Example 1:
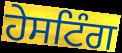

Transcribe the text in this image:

ਹੇਸਟਿੰਗ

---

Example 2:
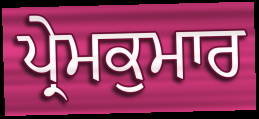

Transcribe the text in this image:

ਪ੍ਰੇਮਕੁਮਾਰ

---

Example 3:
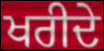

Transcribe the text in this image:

ਖਰੀਦੇ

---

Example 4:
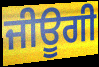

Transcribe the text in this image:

ਜੀਊਗੀ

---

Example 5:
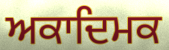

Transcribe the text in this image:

ਅਕਾਦਿਮਕ